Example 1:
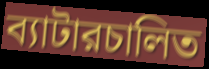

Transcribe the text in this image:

ব্যাটারচালিত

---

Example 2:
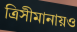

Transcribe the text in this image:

ত্রিসীমানায়ও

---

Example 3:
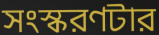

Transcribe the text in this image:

সংস্করণটার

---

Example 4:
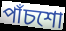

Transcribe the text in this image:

পাঁচশো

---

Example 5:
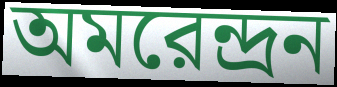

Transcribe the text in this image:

অমরেন্দ্রন